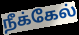
நீக்கேல்